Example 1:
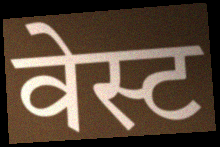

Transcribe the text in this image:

वेस्ट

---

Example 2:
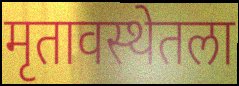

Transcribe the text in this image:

मृतावस्थेतला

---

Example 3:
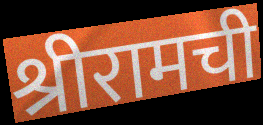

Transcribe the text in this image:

श्रीरामची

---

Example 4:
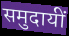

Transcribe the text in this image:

समुदायीं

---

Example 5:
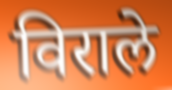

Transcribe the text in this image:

विराले